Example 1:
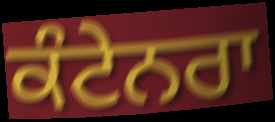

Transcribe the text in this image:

ਕੰਟੇਨਰਾ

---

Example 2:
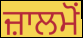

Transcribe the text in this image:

ਜ਼ਾਲਮੋਂ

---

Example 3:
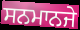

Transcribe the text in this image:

ਸਨਮਾਨਜੇ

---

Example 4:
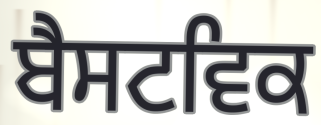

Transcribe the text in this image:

ਬੈਸਟਵਿਕ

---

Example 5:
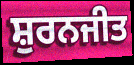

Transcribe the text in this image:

ਸ਼ੁਰਨਜੀਤ